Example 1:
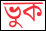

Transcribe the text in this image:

ভুক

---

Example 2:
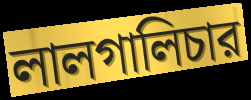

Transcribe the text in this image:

লালগালিচার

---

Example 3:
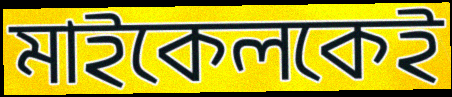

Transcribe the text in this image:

মাইকেলকেই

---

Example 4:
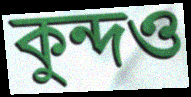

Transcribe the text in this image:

কুন্দও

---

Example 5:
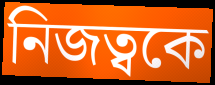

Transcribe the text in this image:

নিজত্বকে